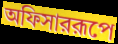
অফিসাররূপে